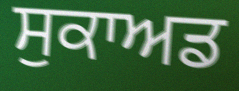
ਸੁਕਾਅਡ